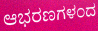
ಆಭರಣಗಳಂದ